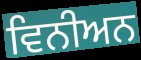
ਵਿਨੀਅਨ